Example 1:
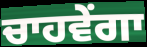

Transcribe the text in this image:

ਚਾਹਵੇਂਗਾ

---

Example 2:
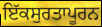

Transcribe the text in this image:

ਇੱਕਸੁਰਤਾਪੂਰਨ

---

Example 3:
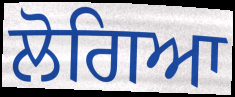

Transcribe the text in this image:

ਲੋਗਿਆ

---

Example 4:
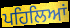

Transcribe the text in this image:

ਪਹਿਲਿਆਂ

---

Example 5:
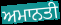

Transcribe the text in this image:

ਅਮਾਨਤੀ